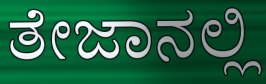
ತೇಜಾನಲ್ಲಿ